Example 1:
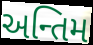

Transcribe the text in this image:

અન્તિમ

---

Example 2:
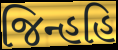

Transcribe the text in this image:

જિન્હહિ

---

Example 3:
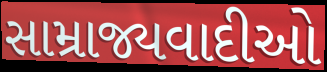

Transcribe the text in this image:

સામ્રાજ્યવાદીઓ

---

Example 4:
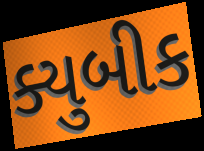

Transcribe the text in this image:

ક્યુબીક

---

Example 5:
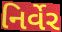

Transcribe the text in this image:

નિર્વેર